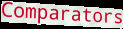
Comparators